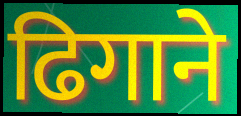
ढिगाने